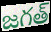
జగత్